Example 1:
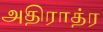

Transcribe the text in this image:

அதிராத்ர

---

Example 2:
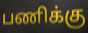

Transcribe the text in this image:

பணிக்கு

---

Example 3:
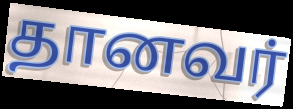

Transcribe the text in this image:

தானவர்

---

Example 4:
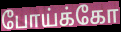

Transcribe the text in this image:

போய்க்கோ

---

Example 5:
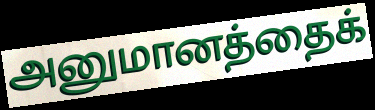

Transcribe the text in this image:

அனுமானத்தைக்